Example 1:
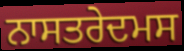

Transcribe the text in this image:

ਨਾਸਤਰੇਦਮਸ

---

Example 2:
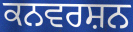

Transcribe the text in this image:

ਕਨਵਰਸ਼ਨ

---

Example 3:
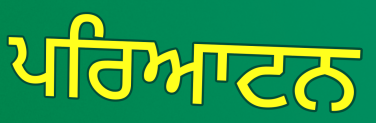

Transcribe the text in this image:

ਪਰਿਆਟਨ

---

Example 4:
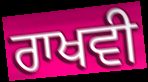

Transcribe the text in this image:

ਰਾਖਵੀ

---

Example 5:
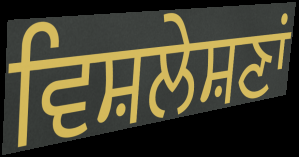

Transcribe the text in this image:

ਵਿਸ਼ਲੇਸ਼ਣਾਂ